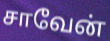
சாவேன்